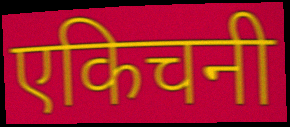
एकिचनी